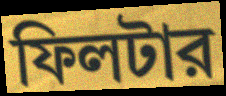
ফিলটার